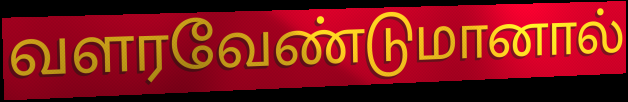
வளரவேண்டுமானால்